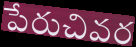
పేరుచివర